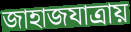
জাহাজযাত্রায়